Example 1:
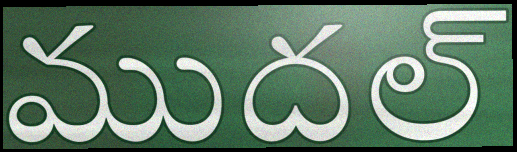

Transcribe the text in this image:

ముదల్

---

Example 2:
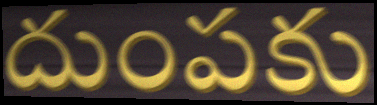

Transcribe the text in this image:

దుంపకు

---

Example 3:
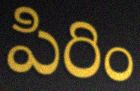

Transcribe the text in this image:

పిరిం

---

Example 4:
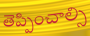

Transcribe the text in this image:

తెప్పించాల్సి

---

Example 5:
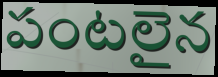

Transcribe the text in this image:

పంటలైన